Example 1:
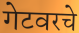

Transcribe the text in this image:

गेटवरचे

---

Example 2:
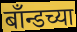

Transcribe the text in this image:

बाँन्डच्या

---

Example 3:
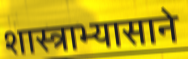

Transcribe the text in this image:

शास्त्राभ्यासाने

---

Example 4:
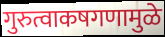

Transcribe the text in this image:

गुरुत्वाकषगणामुळे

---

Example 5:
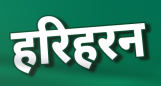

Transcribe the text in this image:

हरिहरन